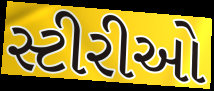
સ્ટીરીઓ